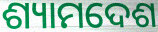
ଶ୍ୟାମଦେଶ